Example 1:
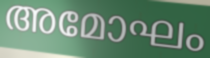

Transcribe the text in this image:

അമോഘം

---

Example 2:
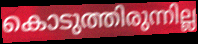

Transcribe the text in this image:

കൊടുത്തിരുന്നില്ല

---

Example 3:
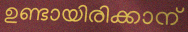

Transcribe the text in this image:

ഉണ്ടായിരിക്കാന്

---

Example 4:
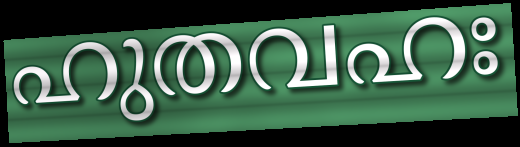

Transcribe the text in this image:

ഹുതവഹഃ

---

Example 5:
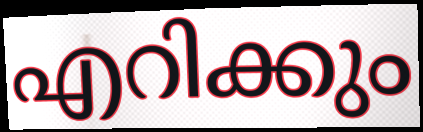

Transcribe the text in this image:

എറിക്കും